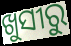
ଖୁସୀରୁ